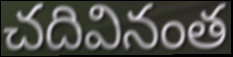
చదివినంత